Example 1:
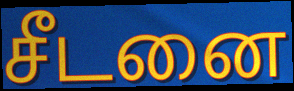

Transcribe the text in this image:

சீடனை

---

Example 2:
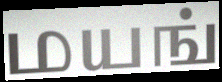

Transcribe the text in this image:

மயங்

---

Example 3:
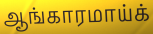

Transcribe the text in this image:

ஆங்காரமாய்க்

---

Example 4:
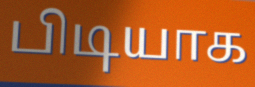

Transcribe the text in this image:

பிடியாக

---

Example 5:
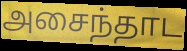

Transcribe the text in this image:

அசைந்தாட